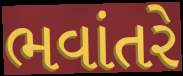
ભવાંતરે